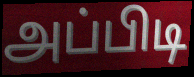
அப்பிடி